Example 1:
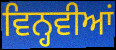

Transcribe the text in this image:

ਵਿਨ੍ਹਵੀਆਂ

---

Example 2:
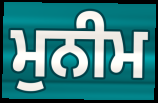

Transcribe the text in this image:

ਮੁਨੀਮ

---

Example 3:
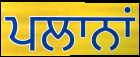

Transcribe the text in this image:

ਪਲਾਨਾਂ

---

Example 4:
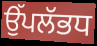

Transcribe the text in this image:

ਉੱਪਲੱਭਧ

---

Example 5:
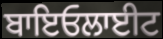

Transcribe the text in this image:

ਬਾਇਓਲਾਈਟ